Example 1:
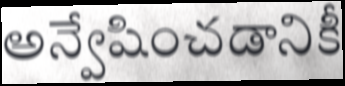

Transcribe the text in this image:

అన్వేషించడానికీ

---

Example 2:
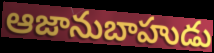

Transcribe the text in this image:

ఆజానుబాహుడు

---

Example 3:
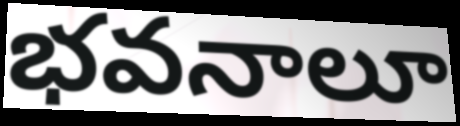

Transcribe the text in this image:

భవనాలూ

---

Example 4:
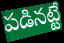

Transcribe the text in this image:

పడినట్టే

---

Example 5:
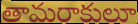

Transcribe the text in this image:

తామరాకులూ